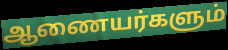
ஆணையர்களும்